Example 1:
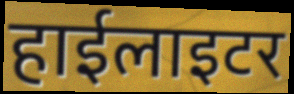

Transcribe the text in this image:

हाईलाइटर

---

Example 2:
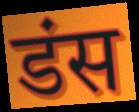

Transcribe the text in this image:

डंस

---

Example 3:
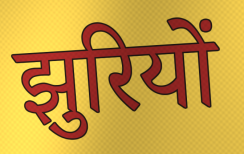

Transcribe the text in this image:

झुरियों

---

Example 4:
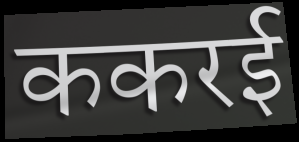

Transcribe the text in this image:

ककरई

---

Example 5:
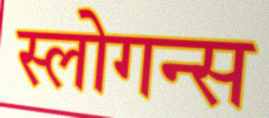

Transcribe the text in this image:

स्लोगन्स